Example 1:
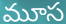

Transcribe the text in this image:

మూస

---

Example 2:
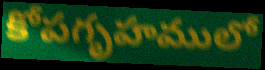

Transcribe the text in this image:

కోపగృహములో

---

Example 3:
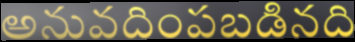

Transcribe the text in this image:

అనువదింపబడినది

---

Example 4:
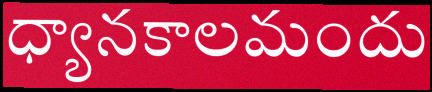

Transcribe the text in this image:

ధ్యానకాలమందు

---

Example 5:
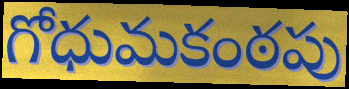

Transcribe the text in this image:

గోధుమకంఠపు